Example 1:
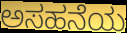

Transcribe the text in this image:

ಅಸಹನೆಯ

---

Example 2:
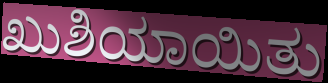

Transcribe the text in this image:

ಖುಶಿಯಾಯಿತು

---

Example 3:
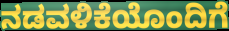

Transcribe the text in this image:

ನಡವಳಿಕೆಯೊಂದಿಗೆ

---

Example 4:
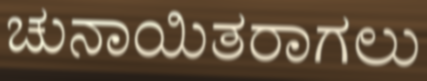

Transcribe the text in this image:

ಚುನಾಯಿತರಾಗಲು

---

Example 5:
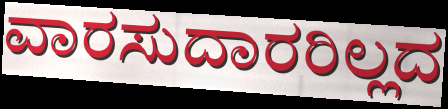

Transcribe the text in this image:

ವಾರಸುದಾರರಿಲ್ಲದ